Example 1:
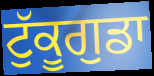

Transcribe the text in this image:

ਟੁੱਕੂਗੁਡਾ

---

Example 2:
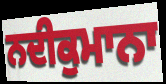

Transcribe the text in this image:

ਨਦੀਕੁਮਾਨਾ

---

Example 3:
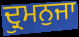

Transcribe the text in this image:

ਦ੍ਰੁਮਨੁਜਾ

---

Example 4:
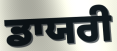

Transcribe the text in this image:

ਡਾਯਰੀ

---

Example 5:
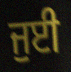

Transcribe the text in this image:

ਜੁਈ